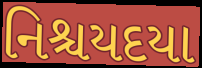
નિશ્ચયદયા